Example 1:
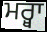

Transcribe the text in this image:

ਮਰ੍ਥਾ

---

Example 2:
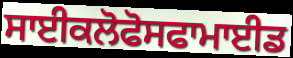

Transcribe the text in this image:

ਸਾਈਕਲੋਫੋਸਫਾਮਾਈਡ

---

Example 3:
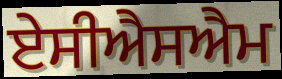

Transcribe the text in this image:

ਏਸੀਐਸਐਮ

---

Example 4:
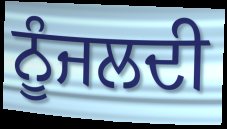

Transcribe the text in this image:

ਨੂੰਜਲਦੀ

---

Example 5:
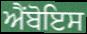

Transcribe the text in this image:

ਐਂਬੋਇਸ